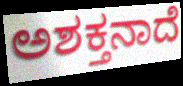
ಅಶಕ್ತನಾದೆ